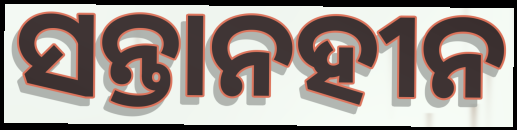
ସନ୍ତାନହୀନ